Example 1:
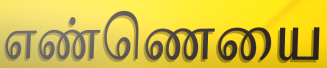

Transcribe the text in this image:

எண்ணெயை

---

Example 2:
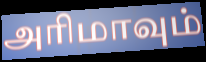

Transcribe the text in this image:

அரிமாவும்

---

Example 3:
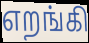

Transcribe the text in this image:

எறங்கி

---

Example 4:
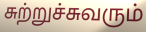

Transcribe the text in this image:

சுற்றுச்சுவரும்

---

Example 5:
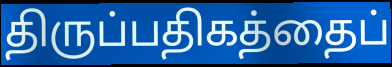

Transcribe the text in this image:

திருப்பதிகத்தைப்